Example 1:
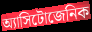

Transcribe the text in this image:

অ্যাসিটোজেনিক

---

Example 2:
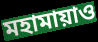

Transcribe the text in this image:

মহামায়াও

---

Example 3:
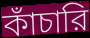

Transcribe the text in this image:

কাঁচারি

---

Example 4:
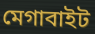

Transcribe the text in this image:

মেগাবাইট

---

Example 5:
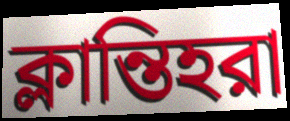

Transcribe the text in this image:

ক্লান্তিহরা